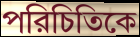
পরিচিতিকে